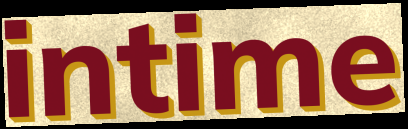
intime